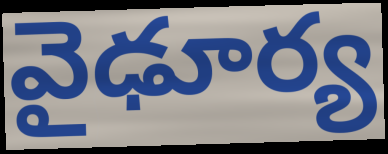
వైఢూర్య